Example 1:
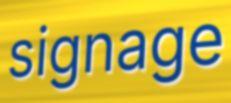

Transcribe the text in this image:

signage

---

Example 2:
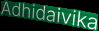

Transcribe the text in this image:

Adhidaivika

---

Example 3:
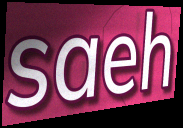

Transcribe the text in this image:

saeh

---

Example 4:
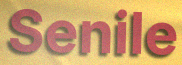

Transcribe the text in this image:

Senile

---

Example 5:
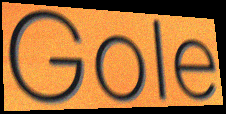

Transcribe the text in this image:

Gole